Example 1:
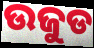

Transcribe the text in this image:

ଉଜୁଡ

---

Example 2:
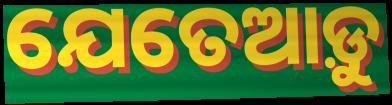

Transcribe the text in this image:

ଯେତେଆଡ଼ୁ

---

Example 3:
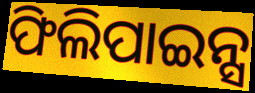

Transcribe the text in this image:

ଫିଲିପାଇନ୍ସ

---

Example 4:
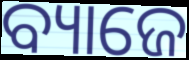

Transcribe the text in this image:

ବ୍ୟାଜେ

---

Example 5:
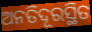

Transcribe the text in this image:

ଅନତିଦୂରସ୍ଥିତ